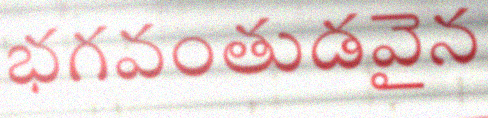
భగవంతుడవైన